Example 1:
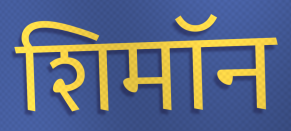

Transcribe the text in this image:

शिमॉन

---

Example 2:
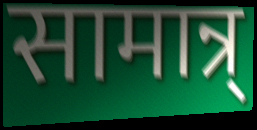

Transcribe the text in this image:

सामान्र्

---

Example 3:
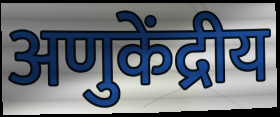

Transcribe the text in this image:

अणुकेंद्रीय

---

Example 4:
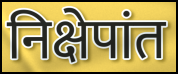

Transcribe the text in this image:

निक्षेपांत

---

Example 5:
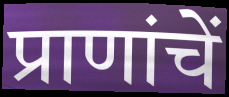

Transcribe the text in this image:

प्राणांचें